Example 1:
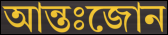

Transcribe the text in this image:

আন্তঃজোন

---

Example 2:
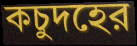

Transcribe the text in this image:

কচুদহের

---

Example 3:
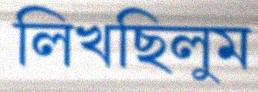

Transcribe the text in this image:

লিখছিলুম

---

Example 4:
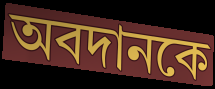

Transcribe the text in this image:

অবদানকে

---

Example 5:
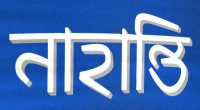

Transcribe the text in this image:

নাহান্তি